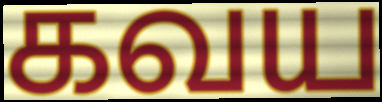
கவய